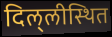
दिल्लीस्थित